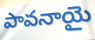
పావనాయై